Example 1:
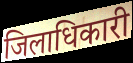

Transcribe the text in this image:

जिलाधिकारी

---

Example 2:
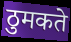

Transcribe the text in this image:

ठुमकते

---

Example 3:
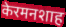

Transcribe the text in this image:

केरमनशाह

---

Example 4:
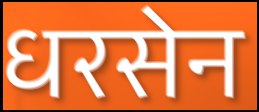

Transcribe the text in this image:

धरसेन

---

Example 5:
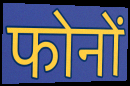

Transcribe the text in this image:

फोनों